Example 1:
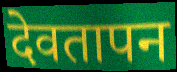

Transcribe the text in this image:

देवतापन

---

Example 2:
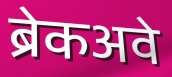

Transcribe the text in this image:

ब्रेकअवे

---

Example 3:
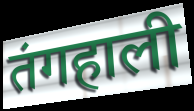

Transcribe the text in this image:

तंगहाली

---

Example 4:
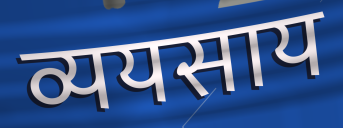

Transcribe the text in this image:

व्ययसाय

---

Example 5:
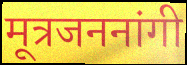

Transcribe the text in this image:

मूत्रजननांगी